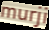
murji